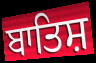
ਬਾਤਿਸ਼